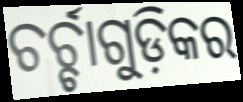
ଚର୍ଚ୍ଚାଗୁଡ଼ିକର